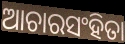
ଆଚାରସଂହିତା